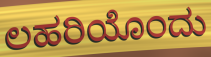
ಲಹರಿಯೊಂದು